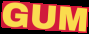
GUM